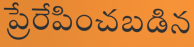
ప్రేరేపించబడిన